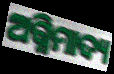
ଅଗ୍ନିମାଦ୍ୟ